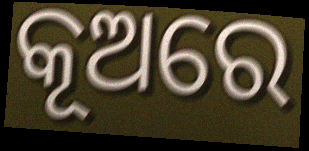
କୂଅରେ